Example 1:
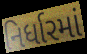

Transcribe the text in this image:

નિર્ધારમાં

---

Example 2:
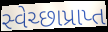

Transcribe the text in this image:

સ્વેચ્છાપ્રાપ્ત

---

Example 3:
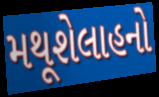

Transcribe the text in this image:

મથૂશેલાહનો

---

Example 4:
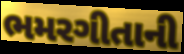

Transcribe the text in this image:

ભમરગીતાની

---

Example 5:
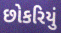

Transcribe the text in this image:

છોકરિયું